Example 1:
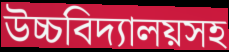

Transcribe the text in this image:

উচ্চবিদ্যালয়সহ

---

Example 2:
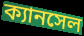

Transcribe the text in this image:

ক্যানসেল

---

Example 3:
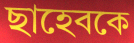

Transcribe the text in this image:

ছাহেবকে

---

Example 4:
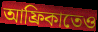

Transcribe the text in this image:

আফ্রিকাতেও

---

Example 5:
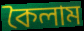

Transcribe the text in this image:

কৈলাম